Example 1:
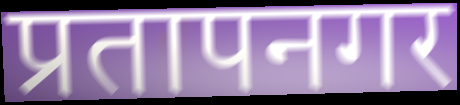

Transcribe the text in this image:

प्रतापनगर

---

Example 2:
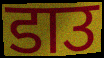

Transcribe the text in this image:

डाउ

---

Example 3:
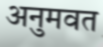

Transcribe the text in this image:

अनुमवत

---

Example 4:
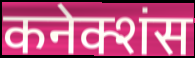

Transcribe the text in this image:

कनेक्शंस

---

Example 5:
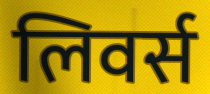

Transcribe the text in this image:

लिवर्स